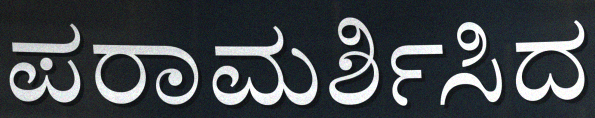
ಪರಾಮರ್ಶಿಸಿದ